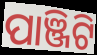
ପାଞ୍ଜିଟି